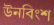
উনবিংশ